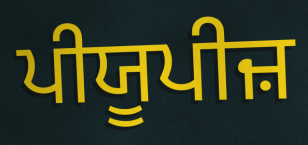
ਪੀਯੂਪੀਜ਼